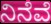
ನಿನೆವೆ